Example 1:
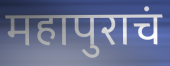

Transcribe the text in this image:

महापुराचं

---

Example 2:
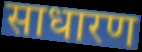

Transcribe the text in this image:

साधारण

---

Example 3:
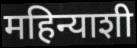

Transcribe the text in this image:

महिन्याशी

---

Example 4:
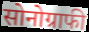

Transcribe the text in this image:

सोनोग्राफी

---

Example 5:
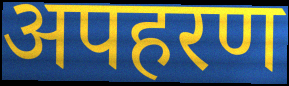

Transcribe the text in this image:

अपहरण